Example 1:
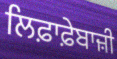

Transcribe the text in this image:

ਲਿਫ਼ਾਫ਼ੇਬਾਜ਼ੀ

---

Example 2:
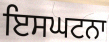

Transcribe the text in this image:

ਇਸਘਟਨਾ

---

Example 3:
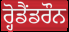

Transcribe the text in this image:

ਰ੍ਹੋਡੈਂਡਰੌਨ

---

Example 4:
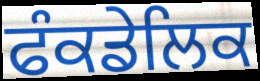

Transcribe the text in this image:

ਫੰਕਡੇਲਿਕ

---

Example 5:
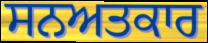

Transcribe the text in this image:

ਸਨਅਤਕਾਰ